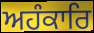
ਅਹੰਕਾਰਿ